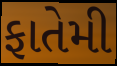
ફાતેમી